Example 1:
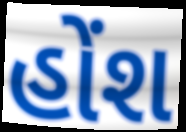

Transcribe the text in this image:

હોંશ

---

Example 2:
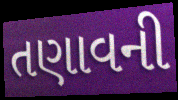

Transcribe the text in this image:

તણાવની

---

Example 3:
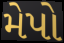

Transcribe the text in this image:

મેપો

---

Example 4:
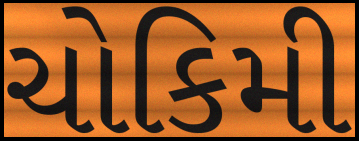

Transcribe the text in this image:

ચોકિમી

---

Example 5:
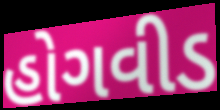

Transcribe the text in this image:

હોગવીડ